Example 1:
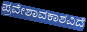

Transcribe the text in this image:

ಪ್ರವೇಶಾವಕಾಶವಿದೆ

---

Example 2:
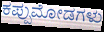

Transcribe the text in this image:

ಕಪ್ಪುಮೋಡಗಳು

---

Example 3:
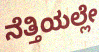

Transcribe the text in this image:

ನೆತ್ತಿಯಲ್ಲೇ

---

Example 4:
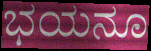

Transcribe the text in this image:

ಭಯನೂ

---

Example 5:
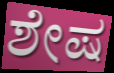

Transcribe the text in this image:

ಶೇಷ